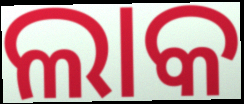
ଲାକ